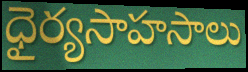
ధైర్యసాహసాలు